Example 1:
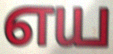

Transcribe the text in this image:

எய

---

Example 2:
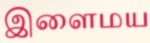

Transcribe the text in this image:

இளைமய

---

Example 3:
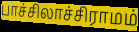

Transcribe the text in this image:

பாச்சிலாச்சிராமம்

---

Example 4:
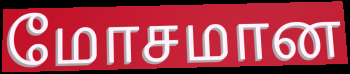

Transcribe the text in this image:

மோசமான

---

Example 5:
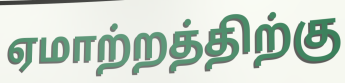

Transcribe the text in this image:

ஏமாற்றத்திற்கு